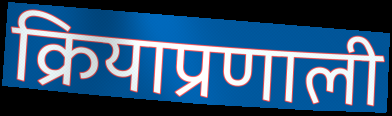
क्रियाप्रणाली